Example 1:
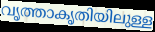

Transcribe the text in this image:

വൃത്താകൃതിയിലുള്ള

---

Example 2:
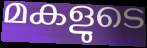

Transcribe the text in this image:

മകളുടെ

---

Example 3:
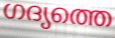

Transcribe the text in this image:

ഗദ്യത്തെ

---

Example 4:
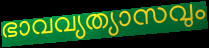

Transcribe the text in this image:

ഭാവവ്യത്യാസവും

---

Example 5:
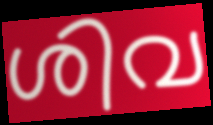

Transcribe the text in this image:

ശിവ